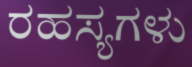
ರಹಸ್ಯಗಳು